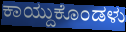
ಕಾಯ್ದುಕೊಂಡಳು